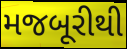
મજબૂરીથી